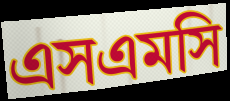
এসএমসি